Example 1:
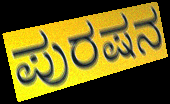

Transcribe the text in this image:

ಪುರಷನ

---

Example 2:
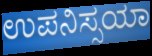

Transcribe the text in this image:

ಉಪನಿಸ್ಸಯಾ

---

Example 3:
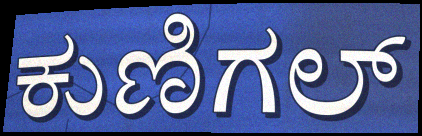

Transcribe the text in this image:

ಕುಣಿಗಲ್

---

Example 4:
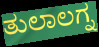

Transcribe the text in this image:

ತುಲಾಲಗ್ನ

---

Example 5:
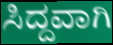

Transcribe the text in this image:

ಸಿದ್ದವಾಗಿ